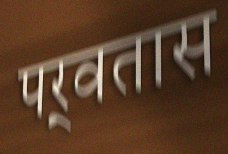
पर्वतास